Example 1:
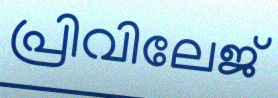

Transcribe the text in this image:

പ്രിവിലേജ്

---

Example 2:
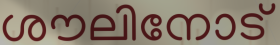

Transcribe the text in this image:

ശൗലിനോട്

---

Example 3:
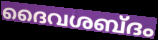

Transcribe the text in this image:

ദൈവശബ്ദം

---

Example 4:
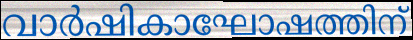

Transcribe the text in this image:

വാർഷികാഘോഷത്തിന്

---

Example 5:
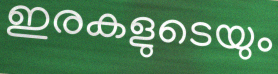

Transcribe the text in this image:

ഇരകളുടെയും